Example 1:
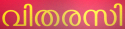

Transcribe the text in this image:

വിതരസി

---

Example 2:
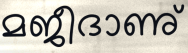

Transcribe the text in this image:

മജീദാണു്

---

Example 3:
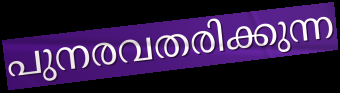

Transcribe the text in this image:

പുനരവതരിക്കുന്ന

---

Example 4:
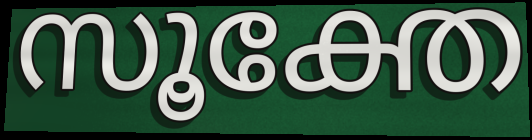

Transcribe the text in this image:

സൂക്തേ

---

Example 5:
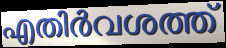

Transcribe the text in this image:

എതിർവശത്ത്